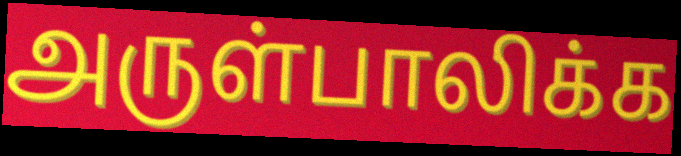
அருள்பாலிக்க